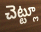
చెట్ట్లూ